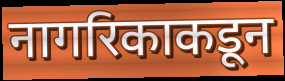
नागरिकाकडून